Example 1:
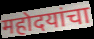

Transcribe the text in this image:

महोदयांचा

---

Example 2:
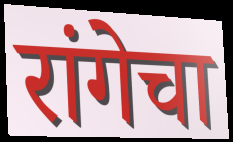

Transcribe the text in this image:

रांगेचा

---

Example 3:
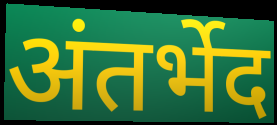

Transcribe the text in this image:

अंतर्भेद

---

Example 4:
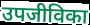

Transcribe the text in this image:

उपजीविका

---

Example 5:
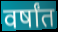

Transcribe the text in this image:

वर्षांत